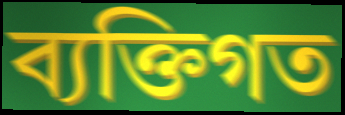
ব্যক্তিগত